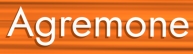
Agremone